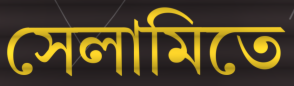
সেলামিতে